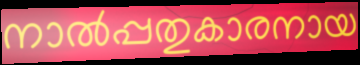
നാൽപ്പതുകാരനായ